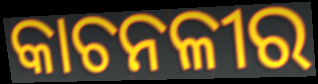
କାଚନଳୀର